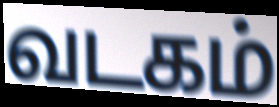
வடகம்